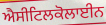
ਐਸੀਟਿਲਕੋਲਾਈਨ